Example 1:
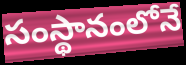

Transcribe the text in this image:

సంస్థానంలోనే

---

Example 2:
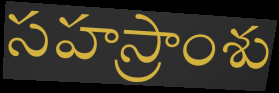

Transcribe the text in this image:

సహస్రాంశు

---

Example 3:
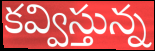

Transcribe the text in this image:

కవ్విస్తున్న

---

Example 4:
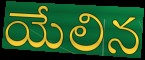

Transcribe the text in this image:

యేలిన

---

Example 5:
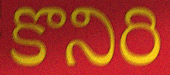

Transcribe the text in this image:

కొనిరి